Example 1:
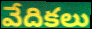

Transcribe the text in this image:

వేదికలు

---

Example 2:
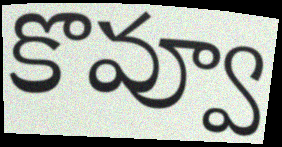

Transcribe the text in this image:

కొవ్వూ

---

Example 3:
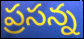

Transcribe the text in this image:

ప్రసన్న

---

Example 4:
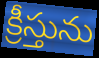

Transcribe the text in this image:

క్రీస్తును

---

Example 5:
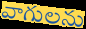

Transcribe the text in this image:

వాగులను